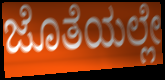
ಜೊತೆಯಲ್ಲೇ